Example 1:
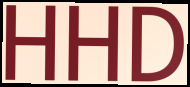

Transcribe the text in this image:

HHD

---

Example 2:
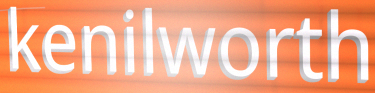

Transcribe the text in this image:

kenilworth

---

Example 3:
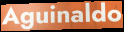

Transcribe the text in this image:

Aguinaldo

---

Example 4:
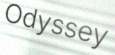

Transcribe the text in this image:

Odyssey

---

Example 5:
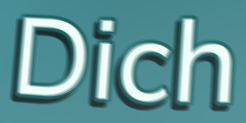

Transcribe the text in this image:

Dich